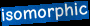
isomorphic